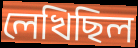
লেখিছিল